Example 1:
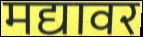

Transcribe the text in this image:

मद्यावर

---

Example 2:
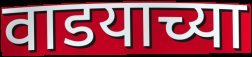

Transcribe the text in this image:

वाडयाच्या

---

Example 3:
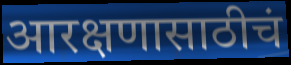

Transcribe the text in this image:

आरक्षणासाठीचं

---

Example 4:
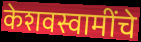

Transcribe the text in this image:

केशवस्वामींचे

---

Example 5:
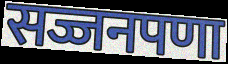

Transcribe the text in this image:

सज्जनपणा